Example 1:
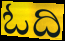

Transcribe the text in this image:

ಓದಿ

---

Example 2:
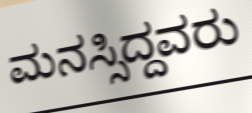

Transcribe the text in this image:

ಮನಸ್ಸಿದ್ದವರು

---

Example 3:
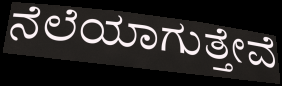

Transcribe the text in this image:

ನೆಲೆಯಾಗುತ್ತೇವೆ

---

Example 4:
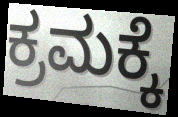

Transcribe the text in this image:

ಕ್ರಮಕ್ಕೆ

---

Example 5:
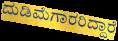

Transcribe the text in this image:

ದುಡಿಮೆಗಾರರಿದ್ದಾರೆ